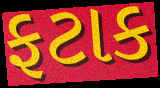
ફટાક